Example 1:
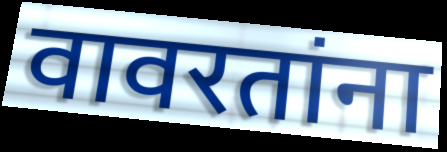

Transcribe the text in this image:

वावरतांना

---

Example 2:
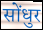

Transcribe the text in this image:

सोंधुर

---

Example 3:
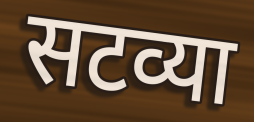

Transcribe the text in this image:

सटव्या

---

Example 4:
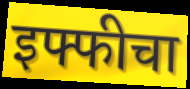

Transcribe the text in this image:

इफ्फीचा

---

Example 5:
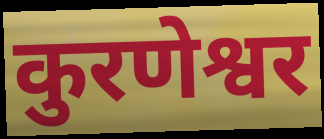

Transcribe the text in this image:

कुरणेश्वर